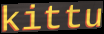
kittu